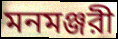
মনমঞ্জরী